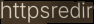
httpsredir